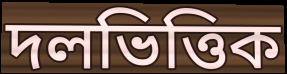
দলভিত্তিক